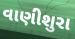
વાણીશુરા